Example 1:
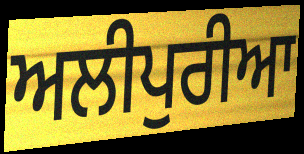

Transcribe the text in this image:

ਅਲੀਪੁਰੀਆ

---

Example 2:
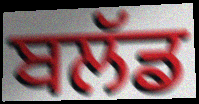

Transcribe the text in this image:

ਬਲੱਡ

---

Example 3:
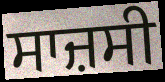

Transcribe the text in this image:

ਸਾਜ਼ਸੀ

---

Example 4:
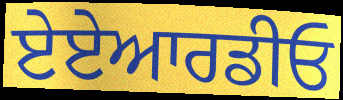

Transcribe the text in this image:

ਏਏਆਰਡੀਓ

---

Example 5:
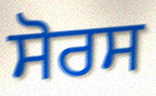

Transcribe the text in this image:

ਸੋਰਸ